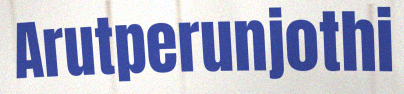
Arutperunjothi